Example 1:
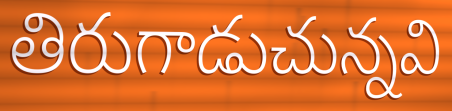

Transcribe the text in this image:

తిరుగాడుచున్నవి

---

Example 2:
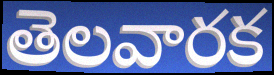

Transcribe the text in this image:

తెలవారక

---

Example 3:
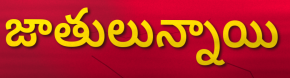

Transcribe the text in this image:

జాతులున్నాయి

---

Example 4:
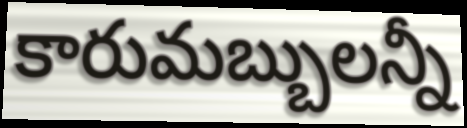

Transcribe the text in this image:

కారుమబ్బులన్నీ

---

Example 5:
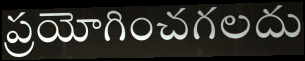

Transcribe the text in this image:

ప్రయోగించగలదు